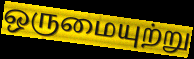
ஒருமையுற்று